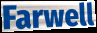
Farwell